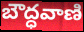
బౌద్ధవాణి